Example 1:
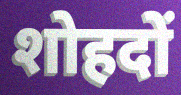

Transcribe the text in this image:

शोहदों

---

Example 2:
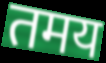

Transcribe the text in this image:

तमय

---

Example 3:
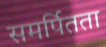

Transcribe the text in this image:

समर्पितता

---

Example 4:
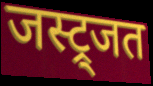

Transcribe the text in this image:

जस्ट्र्जत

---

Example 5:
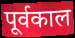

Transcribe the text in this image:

पूर्वकाल